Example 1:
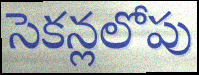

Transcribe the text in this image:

సెకన్లలోపు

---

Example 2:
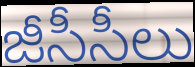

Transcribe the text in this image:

జీసీసీలు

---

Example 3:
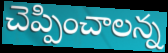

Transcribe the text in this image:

చెప్పించాలన్న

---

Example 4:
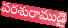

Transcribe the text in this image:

పరశురాముడై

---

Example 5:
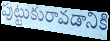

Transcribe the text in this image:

పుట్టుకురావడానికి